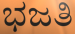
ಭಜತಿ